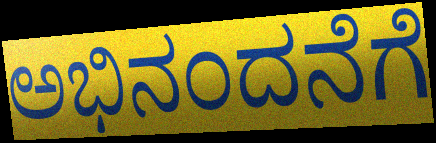
ಅಭಿನಂದನೆಗೆ